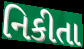
નિકીતા